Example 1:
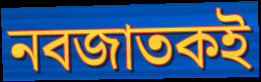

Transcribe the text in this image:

নবজাতকই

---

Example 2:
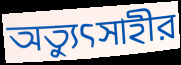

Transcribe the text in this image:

অত্যুৎসাহীর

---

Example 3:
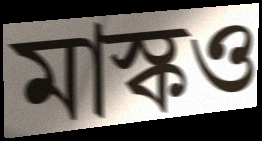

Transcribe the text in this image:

মাস্কও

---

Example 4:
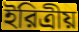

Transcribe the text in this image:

ইরিত্রীয়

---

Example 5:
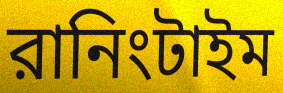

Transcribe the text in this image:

রানিংটাইম